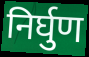
निर्घुण